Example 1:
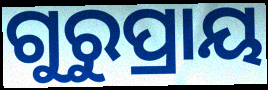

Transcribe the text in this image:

ଗୁରୁପ୍ରାୟ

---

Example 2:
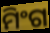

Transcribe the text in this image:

ମିଂଗ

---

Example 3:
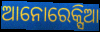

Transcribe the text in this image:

ଆନୋରେକ୍ସିଆ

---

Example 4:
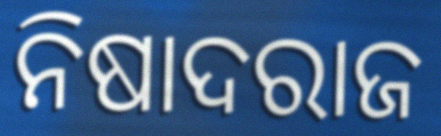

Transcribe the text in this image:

ନିଷାଦରାଜ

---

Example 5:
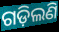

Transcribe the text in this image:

ଗଡ଼ିଲଣି